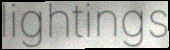
lightings